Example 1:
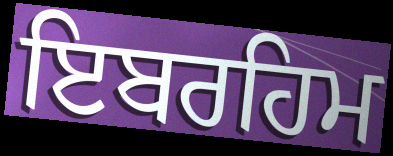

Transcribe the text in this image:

ਇਬਰਹਿਮ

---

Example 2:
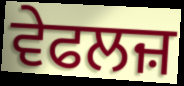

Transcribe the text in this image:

ਵੇਫਲਜ਼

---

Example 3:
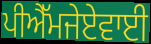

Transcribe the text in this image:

ਪੀਐੱਮਜੇਏਵਾਈ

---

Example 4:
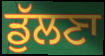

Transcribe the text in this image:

ਡੁੱਲਣਾ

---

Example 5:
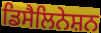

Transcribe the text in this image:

ਡਿਸੈਲਿਨੇਸ਼ਨ